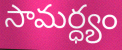
సామర్ధ్యం